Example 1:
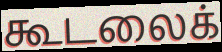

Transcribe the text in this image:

கூடலைக்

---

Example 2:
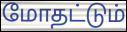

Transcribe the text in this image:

மோதட்டும்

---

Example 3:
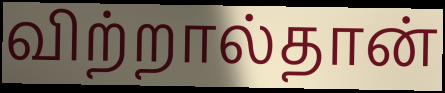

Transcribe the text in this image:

விற்றால்தான்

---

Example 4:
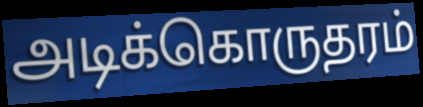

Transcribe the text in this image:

அடிக்கொருதரம்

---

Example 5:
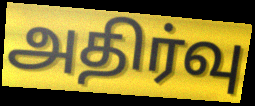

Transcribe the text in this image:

அதிர்வு